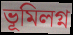
ভূমিলগ্ন